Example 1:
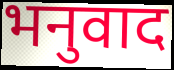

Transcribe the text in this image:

भनुवाद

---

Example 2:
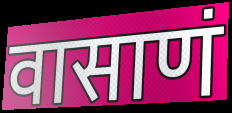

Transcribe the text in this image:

वासाणं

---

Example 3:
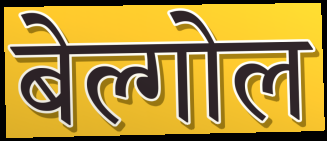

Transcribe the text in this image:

बेल्गोल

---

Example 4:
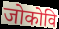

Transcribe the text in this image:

जोकोवि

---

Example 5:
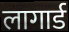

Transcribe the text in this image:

लागार्ड